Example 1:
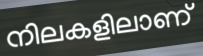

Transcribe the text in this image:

നിലകളിലാണ്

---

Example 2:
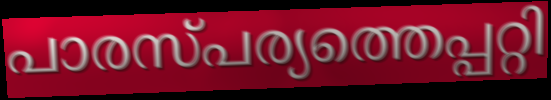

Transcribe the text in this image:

പാരസ്പര്യത്തെപ്പറ്റി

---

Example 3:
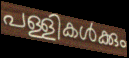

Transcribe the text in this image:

പള്ളികൾക്കും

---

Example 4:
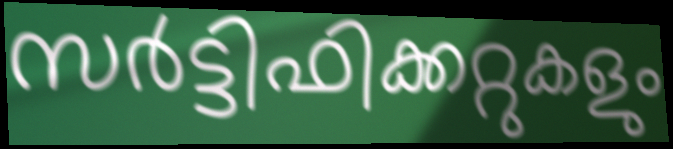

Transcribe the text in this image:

സർട്ടിഫിക്കറ്റുകളും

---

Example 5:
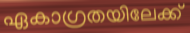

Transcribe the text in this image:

ഏകാഗ്രതയിലേക്ക്